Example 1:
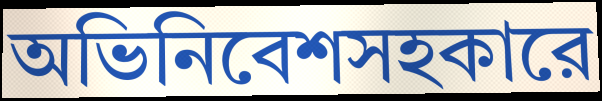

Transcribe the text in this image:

অভিনিবেশসহকারে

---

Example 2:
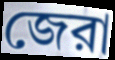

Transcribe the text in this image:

জেরা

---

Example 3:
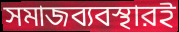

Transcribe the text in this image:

সমাজব্যবস্থারই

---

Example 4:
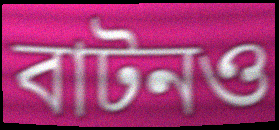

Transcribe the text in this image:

বাটনও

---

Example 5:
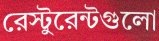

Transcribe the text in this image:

রেস্টুরেন্টগুলো